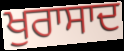
ਖੁਰਾਸਾਦ